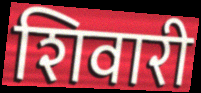
शिवारी